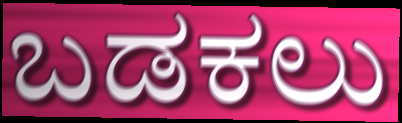
ಬಡಕಲು